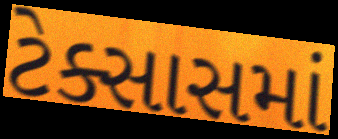
ટેક્સાસમાં